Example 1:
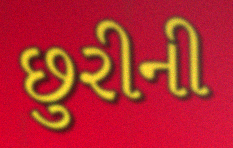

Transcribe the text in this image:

છુરીની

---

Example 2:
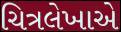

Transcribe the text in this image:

ચિત્રલેખાએ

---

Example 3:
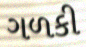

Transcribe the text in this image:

ગળકી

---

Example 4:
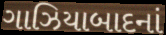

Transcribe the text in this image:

ગાઝિયાબાદનાં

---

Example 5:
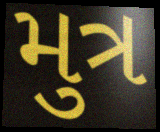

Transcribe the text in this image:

મુત્ર